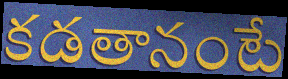
కడతానంటే